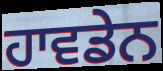
ਹਾਵਡੇਨ